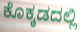
ಕೊಕ್ಕಡದಲ್ಲಿ